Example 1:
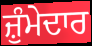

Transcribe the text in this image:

ਜ਼ੁੰਮੇਦਾਰ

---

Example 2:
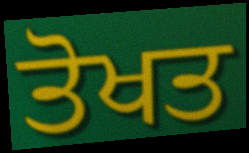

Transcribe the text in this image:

ਤੋਖਤ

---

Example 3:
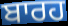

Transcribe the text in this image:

ਬਾਰਹ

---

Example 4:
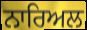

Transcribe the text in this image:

ਨਾਰਿਅਲ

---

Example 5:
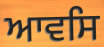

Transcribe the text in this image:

ਆਵਸਿ